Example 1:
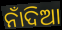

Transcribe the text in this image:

ନାଁଦିଆ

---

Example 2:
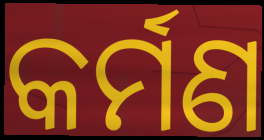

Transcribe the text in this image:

କର୍ମଣ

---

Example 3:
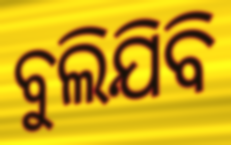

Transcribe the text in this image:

ବୁଲିଯିବି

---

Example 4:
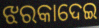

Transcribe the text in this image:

ଝରକାଦେଇ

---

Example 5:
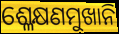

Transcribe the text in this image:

ଶ୍ଳେକ୍ଷଣମୁଖାନି